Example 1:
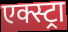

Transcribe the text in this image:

एक्स्ट्रा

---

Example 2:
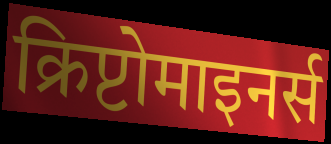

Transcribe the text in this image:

क्रिप्टोमाइनर्स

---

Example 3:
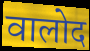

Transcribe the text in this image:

वालोद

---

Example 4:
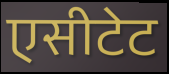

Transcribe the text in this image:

एसीटेट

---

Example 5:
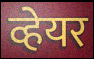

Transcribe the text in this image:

व्हेयर